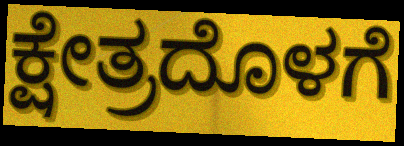
ಕ್ಷೇತ್ರದೊಳಗೆ